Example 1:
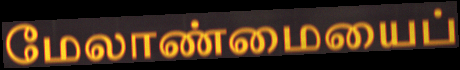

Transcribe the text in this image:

மேலாண்மையைப்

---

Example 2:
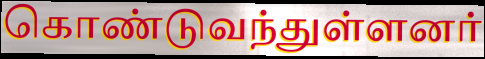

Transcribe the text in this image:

கொண்டுவந்துள்ளனர்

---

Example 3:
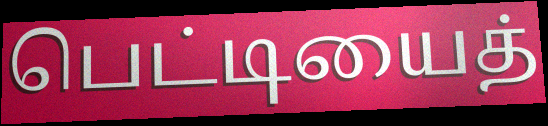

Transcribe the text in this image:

பெட்டியைத்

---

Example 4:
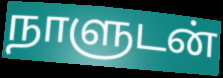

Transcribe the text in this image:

நாளுடன்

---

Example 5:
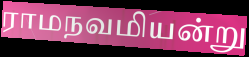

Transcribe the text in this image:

ராமநவமியன்று